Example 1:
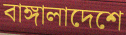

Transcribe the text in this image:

বাঙ্গালাদেশে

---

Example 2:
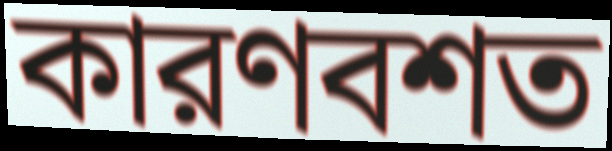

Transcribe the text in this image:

কারণবশত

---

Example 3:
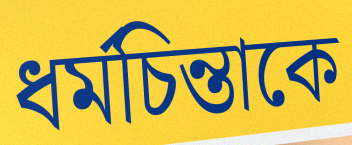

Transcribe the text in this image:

ধর্মচিন্তাকে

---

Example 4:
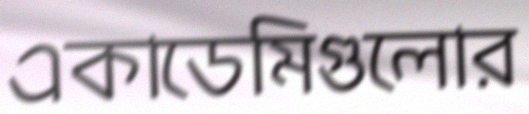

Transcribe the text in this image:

একাডেমিগুলোর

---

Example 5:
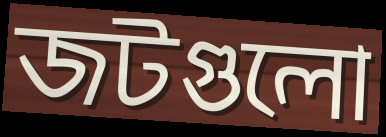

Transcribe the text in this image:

জটগুলো